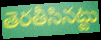
తెరతీసినట్టు